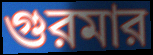
গুরমার